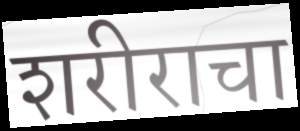
शरीराचा